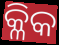
କ୍ଳିକ